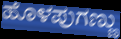
ಹೊಳಪುಗಣ್ಣು